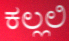
ಕಲ್ಲಲಿ